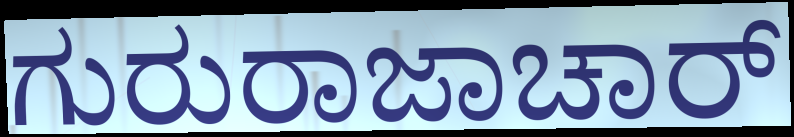
ಗುರುರಾಜಾಚಾರ್